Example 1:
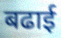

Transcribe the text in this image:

बढाई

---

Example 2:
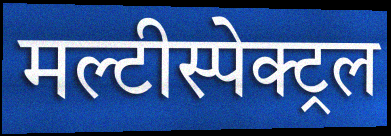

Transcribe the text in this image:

मल्टीस्पेक्ट्रल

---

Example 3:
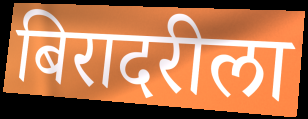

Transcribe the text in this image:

बिरादरीला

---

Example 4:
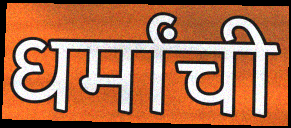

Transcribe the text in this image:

धर्मांची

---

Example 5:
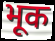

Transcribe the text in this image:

भूक